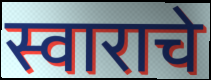
स्वाराचे